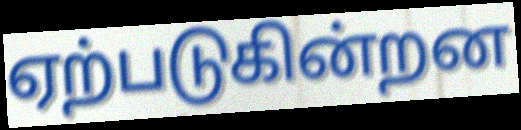
ஏற்படுகின்றன